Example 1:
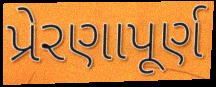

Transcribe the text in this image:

પ્રેરણાપૂર્ણ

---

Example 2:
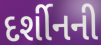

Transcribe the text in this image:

દર્શીનની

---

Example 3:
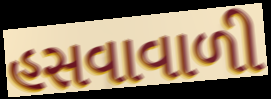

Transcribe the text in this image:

હસવાવાળી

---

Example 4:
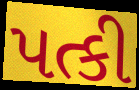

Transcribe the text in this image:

પત્કી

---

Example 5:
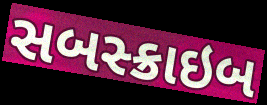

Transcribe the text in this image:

સબસ્ક્રાઇબ